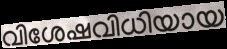
വിശേഷവിധിയായ